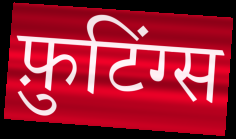
फ़ुटिंग्स